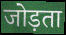
जोड़ता